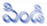
పిండి